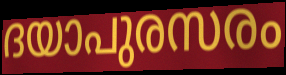
ദയാപുരസരം